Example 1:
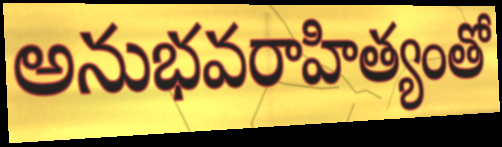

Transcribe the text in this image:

అనుభవరాహిత్యంతో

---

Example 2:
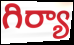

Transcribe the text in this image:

గిర్యా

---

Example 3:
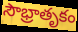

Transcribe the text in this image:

సౌభ్రాతృకం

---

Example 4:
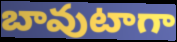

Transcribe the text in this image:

బావుటాగా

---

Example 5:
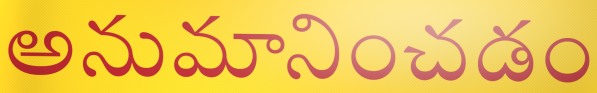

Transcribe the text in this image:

అనుమానించడం